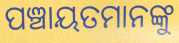
ପଞ୍ଚାୟତମାନଙ୍କୁ